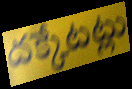
దక్కేటట్లు